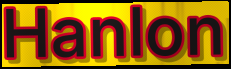
Hanlon